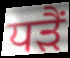
ਧੜੈਂ